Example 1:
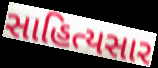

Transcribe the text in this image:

સાહિત્યસાર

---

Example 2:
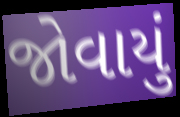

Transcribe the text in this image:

જોવાયું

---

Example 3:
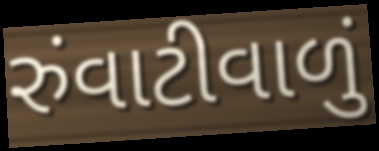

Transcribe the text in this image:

રુંવાટીવાળું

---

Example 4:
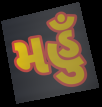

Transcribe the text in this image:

મહુઁ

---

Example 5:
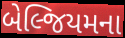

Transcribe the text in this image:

બેલ્જિયમના